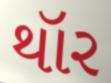
થૉર